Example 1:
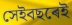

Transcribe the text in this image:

সেইবছৰেই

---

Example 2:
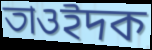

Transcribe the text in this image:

তাওইদক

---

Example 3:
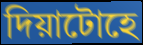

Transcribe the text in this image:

দিয়াটোহে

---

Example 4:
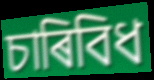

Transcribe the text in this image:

চাৰিবিধ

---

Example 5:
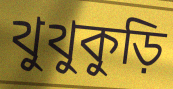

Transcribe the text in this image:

থুথুকুড়ি